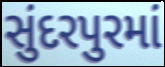
સુંદરપુરમાં